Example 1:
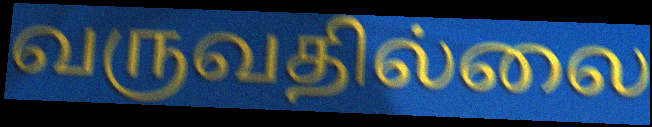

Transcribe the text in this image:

வருவதில்லை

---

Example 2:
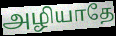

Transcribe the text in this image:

அழியாதே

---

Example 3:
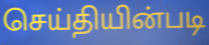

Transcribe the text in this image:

செய்தியின்படி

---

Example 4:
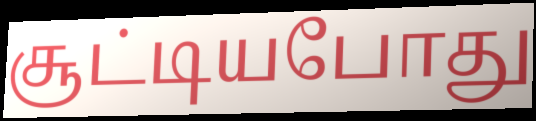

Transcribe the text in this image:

சூட்டியபோது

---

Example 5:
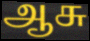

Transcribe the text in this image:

ஆசு